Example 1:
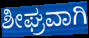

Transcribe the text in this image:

ಶೀಘ್ರವಾಗಿ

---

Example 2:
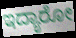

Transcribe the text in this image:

ಇದ್ಯಾರೋ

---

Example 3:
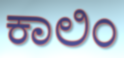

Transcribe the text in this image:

ಕಾಲಿಂ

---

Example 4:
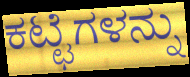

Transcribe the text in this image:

ಕಟ್ಟೆಗಳನ್ನು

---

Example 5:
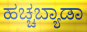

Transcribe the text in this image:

ಹಚ್ಚಬ್ಯಾಡಾ